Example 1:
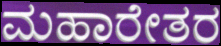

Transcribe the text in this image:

ಮಹಾರೇತರ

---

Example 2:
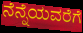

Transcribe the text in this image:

ನೆನ್ನೆಯವರೆಗೆ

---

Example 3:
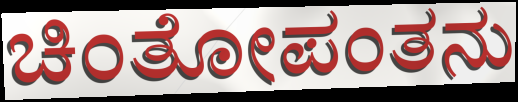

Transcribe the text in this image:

ಚಿಂತೋಪಂತನು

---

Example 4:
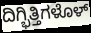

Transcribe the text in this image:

ದಿಗ್ಭಿತ್ತಿಗಳೊಳ್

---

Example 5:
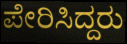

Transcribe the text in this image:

ಪೇರಿಸಿದ್ದರು